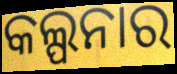
କଲ୍ପନାର